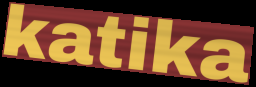
katika